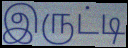
இருட்டி